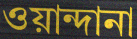
ওয়ান্দানা